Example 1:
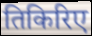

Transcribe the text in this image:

तिकिरिए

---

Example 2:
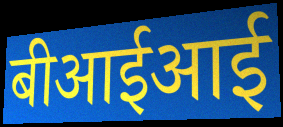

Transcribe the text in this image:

बीआईआई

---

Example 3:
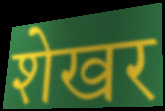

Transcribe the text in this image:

शेखर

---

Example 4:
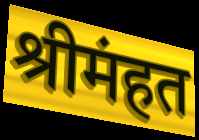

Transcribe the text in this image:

श्रीमंहत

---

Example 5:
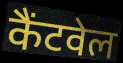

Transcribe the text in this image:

कैंटवेल